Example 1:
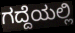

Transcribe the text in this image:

ಗದ್ದೆಯಲ್ಲಿ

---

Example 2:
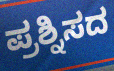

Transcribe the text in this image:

ಪ್ರಶ್ನಿಸದ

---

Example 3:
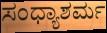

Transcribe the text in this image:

ಸಂಧ್ಯಾಶರ್ಮ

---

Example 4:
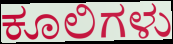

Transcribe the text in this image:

ಕೂಲಿಗಳು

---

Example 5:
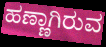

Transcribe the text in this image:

ಹಣ್ಣಾಗಿರುವ